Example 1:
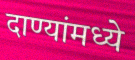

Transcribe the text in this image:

दाण्यांमध्ये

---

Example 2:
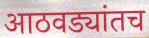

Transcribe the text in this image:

आठवड्यांतच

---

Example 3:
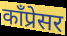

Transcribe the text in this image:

काँप्रेसर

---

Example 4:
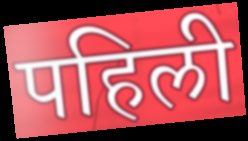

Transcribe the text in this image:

पहिली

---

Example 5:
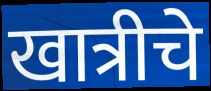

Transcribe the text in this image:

खात्रीचे